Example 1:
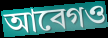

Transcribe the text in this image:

আবেগও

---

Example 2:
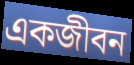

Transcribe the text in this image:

একজীবন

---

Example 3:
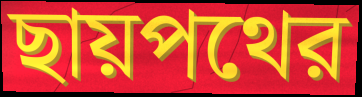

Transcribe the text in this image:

ছায়পথের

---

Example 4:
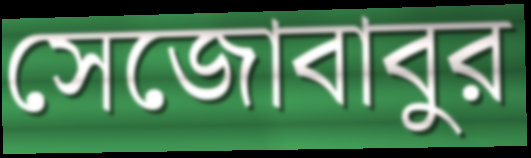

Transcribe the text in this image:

সেজোবাবুর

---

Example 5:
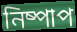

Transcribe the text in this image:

নিষ্পাপ